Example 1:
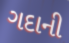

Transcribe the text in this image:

ગદાની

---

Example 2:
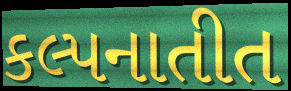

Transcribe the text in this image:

કલ્પનાતીત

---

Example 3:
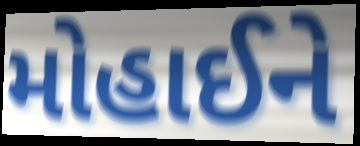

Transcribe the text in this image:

મોહાઈને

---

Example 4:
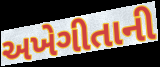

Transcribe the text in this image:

અખેગીતાની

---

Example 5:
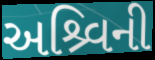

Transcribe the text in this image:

અશ્ર્વિની